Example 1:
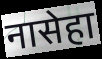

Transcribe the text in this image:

नासेहा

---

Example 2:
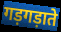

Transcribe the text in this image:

गड़गड़ाते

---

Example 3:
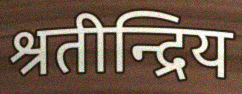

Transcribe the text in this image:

श्रतीन्द्रिय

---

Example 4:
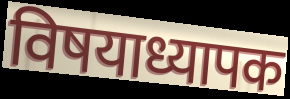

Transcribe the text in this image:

विषयाध्यापक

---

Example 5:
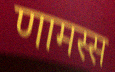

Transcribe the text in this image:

णामस्स